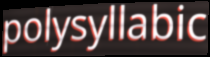
polysyllabic